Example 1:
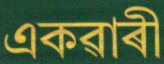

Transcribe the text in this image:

একৱাৰী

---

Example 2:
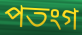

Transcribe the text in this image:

পতংগ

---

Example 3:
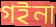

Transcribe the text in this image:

গইনা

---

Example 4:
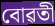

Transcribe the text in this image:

বোৱতী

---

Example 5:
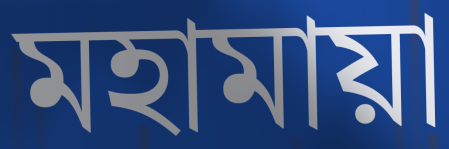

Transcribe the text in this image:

মহামায়া